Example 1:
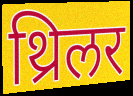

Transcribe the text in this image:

थ्रिलर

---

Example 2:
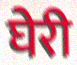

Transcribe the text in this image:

घेरी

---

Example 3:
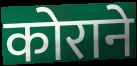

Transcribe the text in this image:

कोराने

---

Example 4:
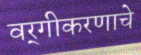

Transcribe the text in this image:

वर्गीकरणाचे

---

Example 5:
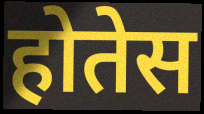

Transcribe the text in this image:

होतेस